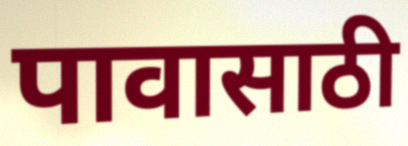
पावासाठी